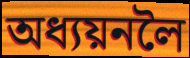
অধ্যয়নলৈ